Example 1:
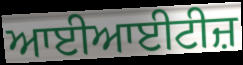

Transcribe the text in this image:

ਆਈਆਈਟੀਜ਼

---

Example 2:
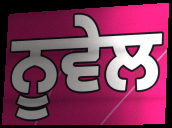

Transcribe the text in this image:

ਨੂਵੇਲ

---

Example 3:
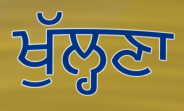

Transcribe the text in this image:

ਖੁੱਲ੍ਹਣਾ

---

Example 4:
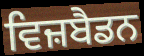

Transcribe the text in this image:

ਵਿਜ਼ਬੈਡਨ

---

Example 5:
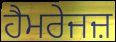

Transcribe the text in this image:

ਹੈਮਰੇਜਜ਼